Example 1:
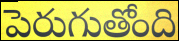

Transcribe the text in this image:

పెరుగుతోంది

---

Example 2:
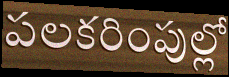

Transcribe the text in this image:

పలకరింపుల్లో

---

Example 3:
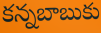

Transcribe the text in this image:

కన్నబాబుకు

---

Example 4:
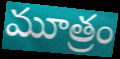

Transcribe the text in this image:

మూత్రం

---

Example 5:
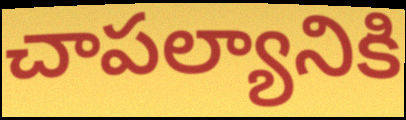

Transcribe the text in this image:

చాపల్యానికి